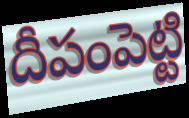
దీపంపెట్టి